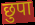
छुपा